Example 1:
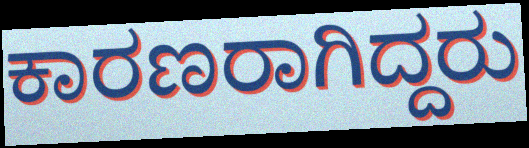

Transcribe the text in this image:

ಕಾರಣರಾಗಿದ್ದರು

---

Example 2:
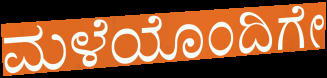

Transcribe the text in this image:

ಮಳೆಯೊಂದಿಗೇ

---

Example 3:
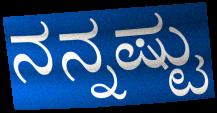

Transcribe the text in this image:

ನನ್ನಷ್ಟು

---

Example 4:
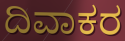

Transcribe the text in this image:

ದಿವಾಕರ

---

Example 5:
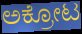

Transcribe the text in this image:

ಅಕ್ರೋಟ